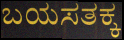
ಬಯಸತಕ್ಕ